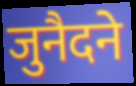
जुनैदने